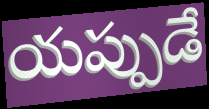
యప్పుడే